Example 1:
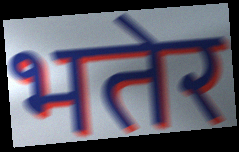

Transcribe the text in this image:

भतेर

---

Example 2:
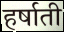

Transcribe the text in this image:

हर्षाती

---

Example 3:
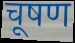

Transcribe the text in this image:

चूषण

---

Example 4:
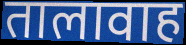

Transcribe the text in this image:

तालावाह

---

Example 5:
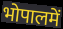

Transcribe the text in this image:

भोपालमें